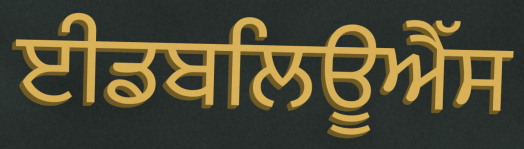
ਈਡਬਲਿਊਐੱਸ